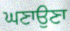
ਘਣਾਉਣਾ